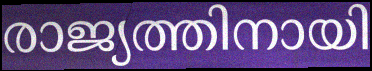
രാജ്യത്തിനായി